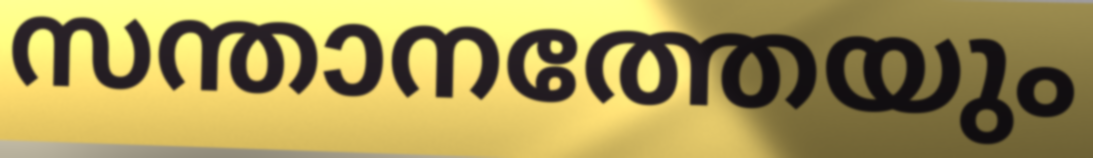
സന്താനത്തേയും